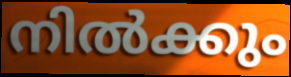
നിൽക്കും